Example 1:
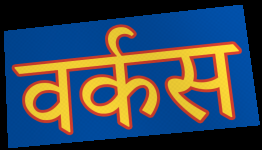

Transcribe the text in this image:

वर्कस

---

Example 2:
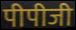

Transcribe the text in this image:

पीपीजी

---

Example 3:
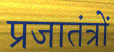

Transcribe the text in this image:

प्रजातंत्रों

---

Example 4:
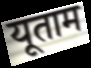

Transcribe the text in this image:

यूताम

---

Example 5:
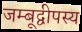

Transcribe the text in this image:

जम्बूद्वीपस्य